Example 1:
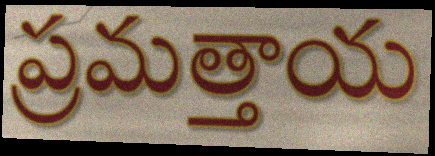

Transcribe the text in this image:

ప్రమత్తాయ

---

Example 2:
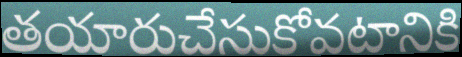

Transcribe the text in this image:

తయారుచేసుకోవటానికి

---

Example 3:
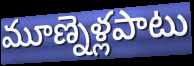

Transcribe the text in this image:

మూణ్నెళ్లపాటు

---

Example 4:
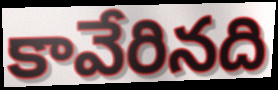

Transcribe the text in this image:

కావేరినది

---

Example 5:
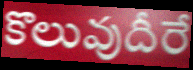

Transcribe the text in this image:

కొలువుదీరే